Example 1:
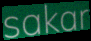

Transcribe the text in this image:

sakar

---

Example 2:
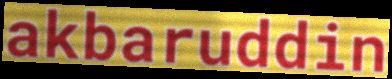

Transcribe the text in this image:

akbaruddin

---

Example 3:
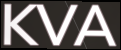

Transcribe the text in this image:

KVA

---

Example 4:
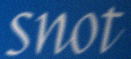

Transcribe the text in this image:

snot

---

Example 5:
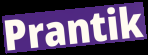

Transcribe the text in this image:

Prantik